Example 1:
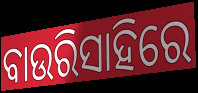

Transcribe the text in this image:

ବାଉରିସାହିରେ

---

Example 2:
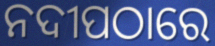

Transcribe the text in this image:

ନଦୀପଠାରେ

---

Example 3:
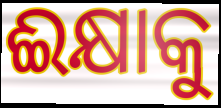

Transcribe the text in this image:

ଈକ୍ଷାକୁ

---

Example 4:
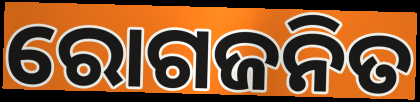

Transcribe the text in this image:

ରୋଗଜନିତ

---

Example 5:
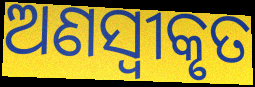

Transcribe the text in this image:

ଅଣସ୍ୱୀକୃତ